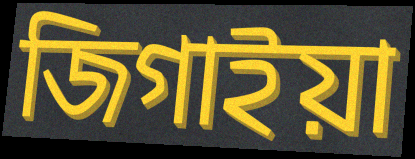
জিগাইয়া